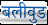
बलीवुड